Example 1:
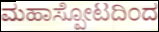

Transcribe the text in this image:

ಮಹಾಸ್ಪೋಟದಿಂದ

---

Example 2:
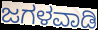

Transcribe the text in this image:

ಜಗಳವಾಡಿ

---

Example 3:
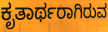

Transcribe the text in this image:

ಕೃತಾರ್ಥರಾಗಿರುವ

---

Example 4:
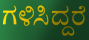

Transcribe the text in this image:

ಗಳಿಸಿದ್ದರೆ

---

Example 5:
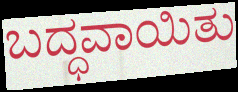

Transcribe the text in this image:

ಬದ್ಧವಾಯಿತು